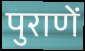
पुराणें